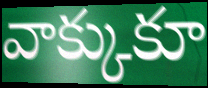
వాక్కుకూ